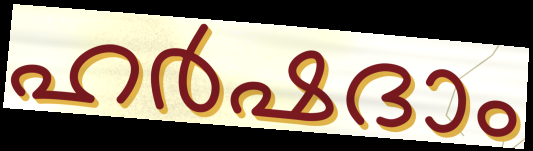
ഹർഷദാം